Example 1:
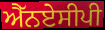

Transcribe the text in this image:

ਐੱਨਏਸੀਪੀ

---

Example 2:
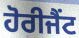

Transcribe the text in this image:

ਹੋਰੀਜੈਂਟ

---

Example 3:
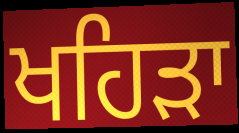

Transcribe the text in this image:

ਖਹਿਡ਼ਾ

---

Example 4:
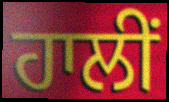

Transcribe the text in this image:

ਹਾਲੀਂ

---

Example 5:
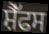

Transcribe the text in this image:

ਸ਼ੈੱਫਸ